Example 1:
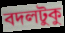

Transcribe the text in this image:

বদলটুকু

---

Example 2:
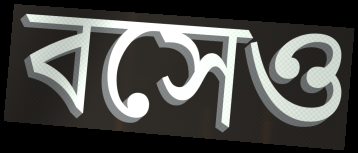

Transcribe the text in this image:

বসেও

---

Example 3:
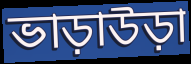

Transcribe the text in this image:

ভাড়াউড়া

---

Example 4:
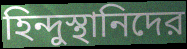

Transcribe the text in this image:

হিন্দুস্থানিদের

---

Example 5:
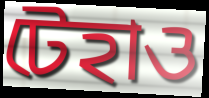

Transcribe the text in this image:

টেহাও